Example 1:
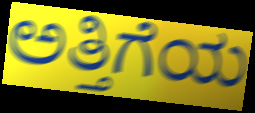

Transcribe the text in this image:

ಅತ್ತಿಗೆಯ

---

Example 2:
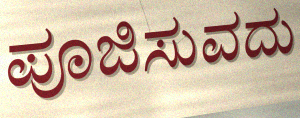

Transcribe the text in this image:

ಪೂಜಿಸುವದು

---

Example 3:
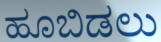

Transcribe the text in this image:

ಹೂಬಿಡಲು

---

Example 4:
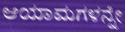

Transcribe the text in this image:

ಆಯಾಮಗಳನ್ನೇ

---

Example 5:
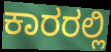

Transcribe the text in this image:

ಕಾರರಲ್ಲಿ